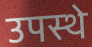
उपस्थे